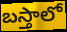
బస్తాలో